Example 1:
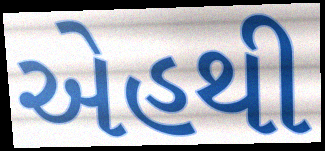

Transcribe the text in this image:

એહથી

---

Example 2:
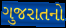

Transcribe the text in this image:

ગુજરાતનો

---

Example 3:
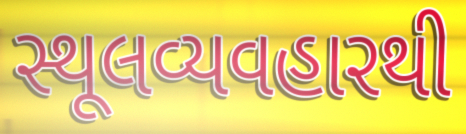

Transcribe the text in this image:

સ્થૂલવ્યવહારથી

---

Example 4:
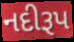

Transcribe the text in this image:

નદીરૂપ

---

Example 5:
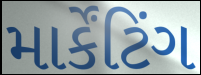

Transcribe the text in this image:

માર્કેંટિંગ